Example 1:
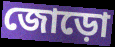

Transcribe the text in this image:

জোড়ো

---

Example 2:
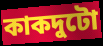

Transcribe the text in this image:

কাকদুটো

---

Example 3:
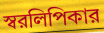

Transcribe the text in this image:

স্বরলিপিকার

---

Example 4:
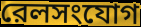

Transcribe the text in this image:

রেলসংযোগ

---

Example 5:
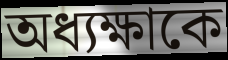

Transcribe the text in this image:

অধ্যক্ষাকে